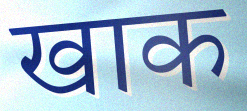
खाक